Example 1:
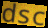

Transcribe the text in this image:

dsc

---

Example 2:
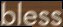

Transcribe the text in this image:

bless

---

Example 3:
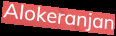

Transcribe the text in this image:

Alokeranjan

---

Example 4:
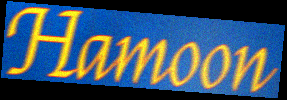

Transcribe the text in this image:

Hamoon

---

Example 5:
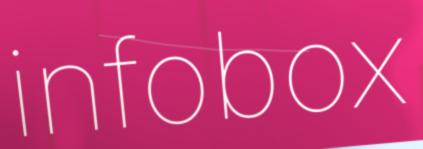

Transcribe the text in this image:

infobox